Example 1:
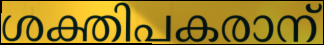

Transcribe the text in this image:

ശക്തിപകരാന്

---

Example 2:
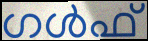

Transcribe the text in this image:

ഗൾഫ്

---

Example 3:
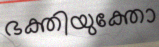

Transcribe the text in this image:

ഭക്തിയുക്തോ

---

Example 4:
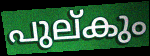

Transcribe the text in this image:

പുല്കും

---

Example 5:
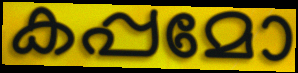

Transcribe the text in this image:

കപ്പമോ